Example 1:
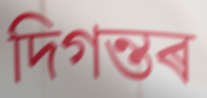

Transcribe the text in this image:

দিগন্তৰ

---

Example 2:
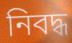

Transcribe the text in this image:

নিবদ্ধ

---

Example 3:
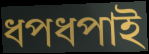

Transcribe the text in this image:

ধপধপাই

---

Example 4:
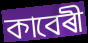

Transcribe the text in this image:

কাবেৰী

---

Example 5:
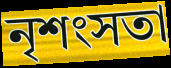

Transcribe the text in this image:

নৃশংসতা